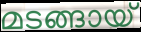
മടങ്ങായ്